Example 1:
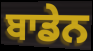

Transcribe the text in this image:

ਬਾਡੇਨ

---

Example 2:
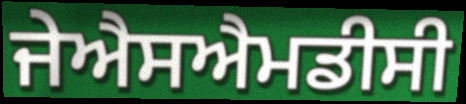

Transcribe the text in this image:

ਜੇਐਸਐਮਡੀਸੀ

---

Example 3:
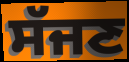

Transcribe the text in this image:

ਸੱਜਣ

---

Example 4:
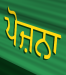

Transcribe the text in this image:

ਪੋਜ਼ਨਾ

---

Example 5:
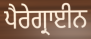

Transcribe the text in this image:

ਪੈਰੇਗ੍ਰਾਈਨ